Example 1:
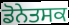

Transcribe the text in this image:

ਡੋਨੇਤਸਕ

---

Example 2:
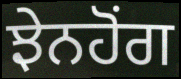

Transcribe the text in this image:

ਝੇਨਹੋਂਗ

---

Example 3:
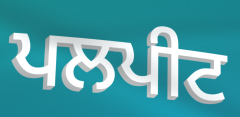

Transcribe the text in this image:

ਪਲਪੀਟ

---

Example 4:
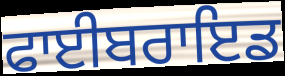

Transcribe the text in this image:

ਫਾਈਬਰਾਇਡ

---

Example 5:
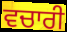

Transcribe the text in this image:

ਵਚਾਰੀ